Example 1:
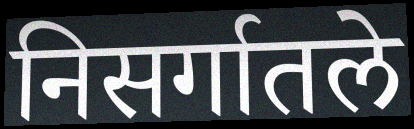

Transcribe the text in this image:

निसर्गातले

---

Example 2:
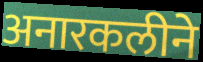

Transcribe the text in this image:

अनारकलीने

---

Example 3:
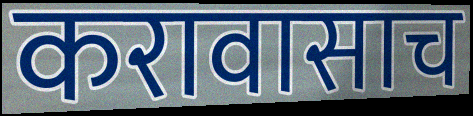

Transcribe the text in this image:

करावासाच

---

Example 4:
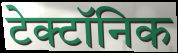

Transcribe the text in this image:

टेक्टॉनिक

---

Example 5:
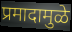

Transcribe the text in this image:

प्रमादामुळे